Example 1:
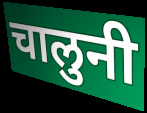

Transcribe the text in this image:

चालुनी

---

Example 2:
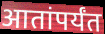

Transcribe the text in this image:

आतांपर्यंत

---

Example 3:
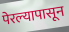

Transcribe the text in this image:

पेरल्यापासून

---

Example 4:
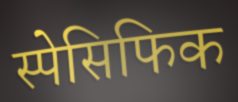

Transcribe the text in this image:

स्पेसिफिक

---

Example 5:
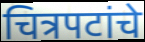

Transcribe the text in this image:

चित्रपटांचे